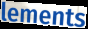
lements